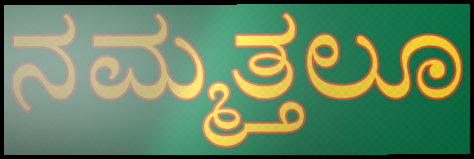
ನಮ್ಮತ್ತಲೂ